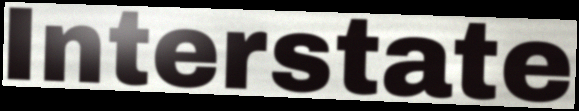
Interstate